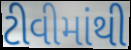
ટીવીમાંથી